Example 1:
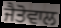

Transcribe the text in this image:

ਜੈਤੋਵਾਲ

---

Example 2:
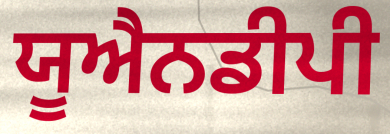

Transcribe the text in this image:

ਯੂਐਨਡੀਪੀ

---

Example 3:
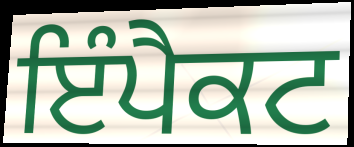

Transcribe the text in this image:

ਇੰਪੈਕਟ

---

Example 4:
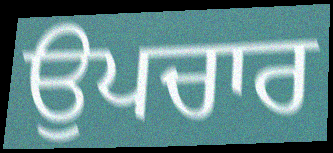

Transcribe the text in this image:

ਉਪਚਾਰ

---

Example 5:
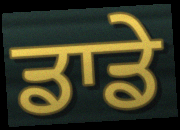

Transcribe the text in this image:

ਡਾਡੇ